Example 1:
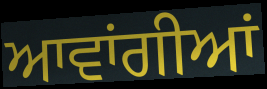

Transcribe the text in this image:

ਆਵਾਂਗੀਆਂ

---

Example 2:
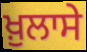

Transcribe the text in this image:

ਖ਼ੁਲਾਸੇ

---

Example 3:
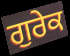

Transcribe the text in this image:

ਗੁਰੇਕ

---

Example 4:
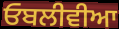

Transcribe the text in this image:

ਓਬਲੀਵੀਆ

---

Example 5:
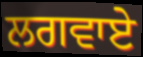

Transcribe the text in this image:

ਲਗਵਾਏ